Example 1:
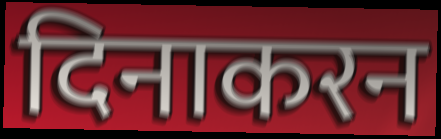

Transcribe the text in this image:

दिनाकरन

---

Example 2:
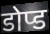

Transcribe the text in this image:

डोप्ड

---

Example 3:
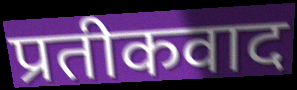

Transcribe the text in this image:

प्रतीकवाद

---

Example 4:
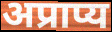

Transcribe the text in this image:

अप्राप्य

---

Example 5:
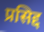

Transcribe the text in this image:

प्रसिद्द